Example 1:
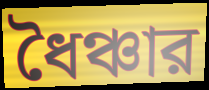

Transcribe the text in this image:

ধৈঞ্চার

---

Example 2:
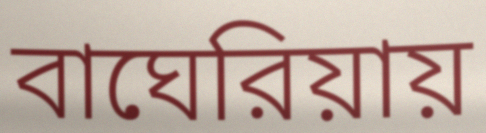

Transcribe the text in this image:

বাঘেরিয়ায়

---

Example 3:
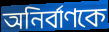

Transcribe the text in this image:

অনির্বাণকে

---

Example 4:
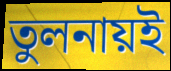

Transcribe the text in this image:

তুলনায়ই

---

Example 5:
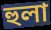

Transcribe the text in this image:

হুলা